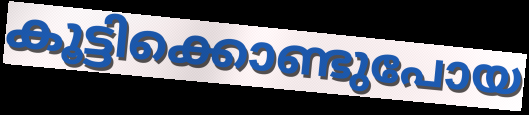
കൂട്ടിക്കൊണ്ടുപോയ